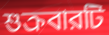
শুক্রবারটি